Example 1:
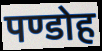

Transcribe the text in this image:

पण्डोह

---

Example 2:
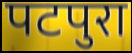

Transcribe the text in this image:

पटपुरा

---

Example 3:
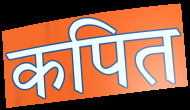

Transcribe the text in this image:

कपित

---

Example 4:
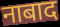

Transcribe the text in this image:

नाबाद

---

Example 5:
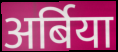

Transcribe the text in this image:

अर्बिया